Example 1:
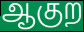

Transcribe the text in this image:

ஆகுற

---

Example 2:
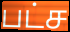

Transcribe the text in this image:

பட்ச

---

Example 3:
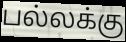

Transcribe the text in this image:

பல்லக்கு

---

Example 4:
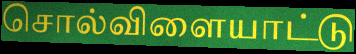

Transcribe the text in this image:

சொல்விளையாட்டு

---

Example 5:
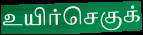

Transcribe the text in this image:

உயிர்செகுக்